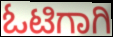
ಓಟಿಗಾಗಿ